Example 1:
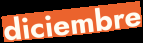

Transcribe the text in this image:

diciembre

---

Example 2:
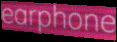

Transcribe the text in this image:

earphone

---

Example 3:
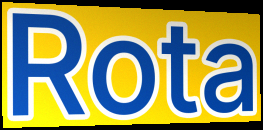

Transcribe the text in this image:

Rota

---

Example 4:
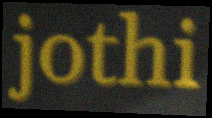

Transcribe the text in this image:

jothi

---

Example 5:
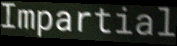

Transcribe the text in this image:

Impartial